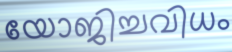
യോജിച്ചവിധം